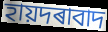
হায়দৰাবাদ